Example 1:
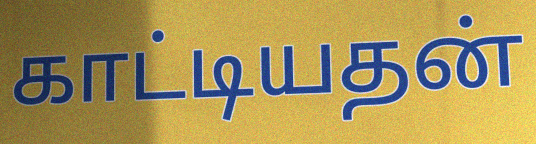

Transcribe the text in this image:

காட்டியதன்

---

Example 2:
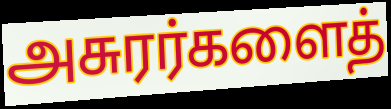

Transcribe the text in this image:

அசுரர்களைத்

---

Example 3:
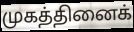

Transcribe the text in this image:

முகத்தினைக்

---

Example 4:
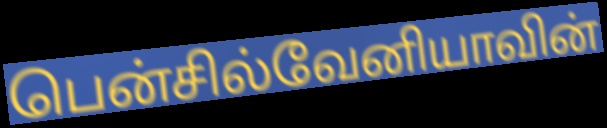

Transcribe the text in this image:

பென்சில்வேனியாவின்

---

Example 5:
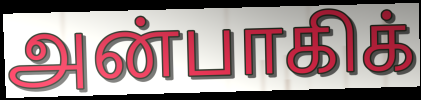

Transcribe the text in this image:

அன்பாகிக்